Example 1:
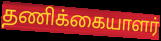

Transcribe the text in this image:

தணிக்கையாளர்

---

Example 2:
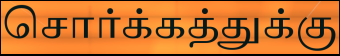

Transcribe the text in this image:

சொர்க்கத்துக்கு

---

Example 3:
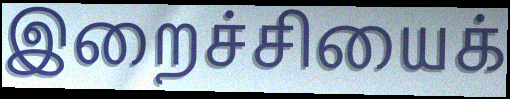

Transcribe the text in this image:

இறைச்சியைக்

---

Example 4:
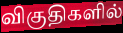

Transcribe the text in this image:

விகுதிகளில்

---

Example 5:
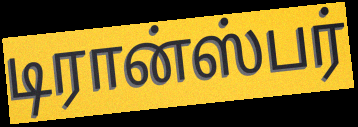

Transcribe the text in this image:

டிரான்ஸ்பர்